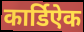
कार्डिऐक